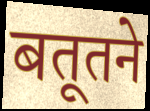
बतूतने